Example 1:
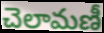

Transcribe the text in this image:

చెలామణీ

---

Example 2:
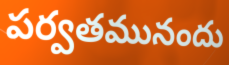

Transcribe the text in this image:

పర్వతమునందు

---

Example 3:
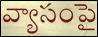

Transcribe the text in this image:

వ్యాసంపై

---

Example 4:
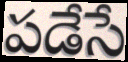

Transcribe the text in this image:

పడేసే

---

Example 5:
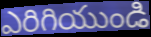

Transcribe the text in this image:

ఎరిగియుండి